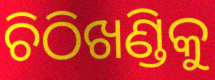
ଚିଠିଖଣ୍ଡିକୁ